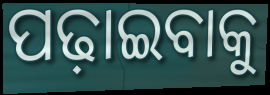
ପଢ଼ାଇବାକୁ